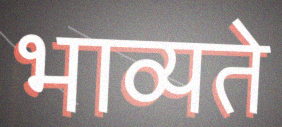
भाव्यते